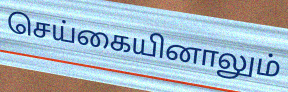
செய்கையினாலும்